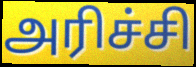
அரிச்சி